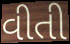
વીતી